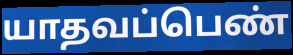
யாதவப்பெண்